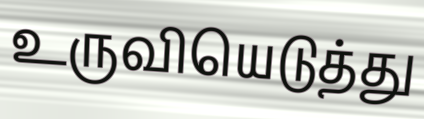
உருவியெடுத்து